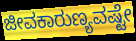
ಜೀವಕಾರುಣ್ಯವಷ್ಟೇ